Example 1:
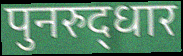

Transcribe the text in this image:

पुनरुद्धार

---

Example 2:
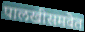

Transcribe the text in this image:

पालखीसमवेत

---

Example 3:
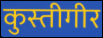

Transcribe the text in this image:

कुस्तीगीर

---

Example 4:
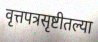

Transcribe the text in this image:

वृत्तपत्रसृष्टीतल्या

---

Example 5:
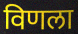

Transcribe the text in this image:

विणला